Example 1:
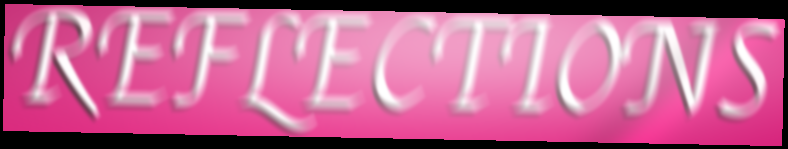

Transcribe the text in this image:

REFLECTIONS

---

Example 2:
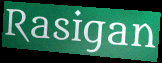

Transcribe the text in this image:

Rasigan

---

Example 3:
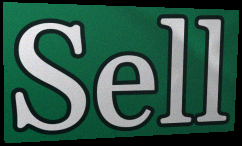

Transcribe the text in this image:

Sell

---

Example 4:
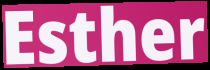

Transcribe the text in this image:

Esther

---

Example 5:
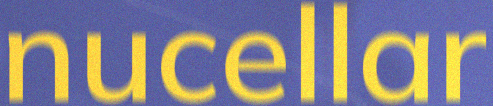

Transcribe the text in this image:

nucellar